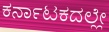
ಕರ್ನಾಟಕದಲ್ಲೇ